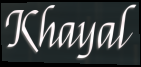
Khayal